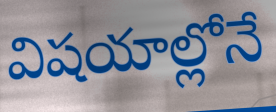
విషయాల్లోనే